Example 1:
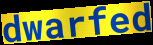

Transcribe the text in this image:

dwarfed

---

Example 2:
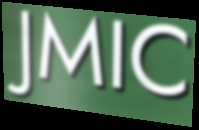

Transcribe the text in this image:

JMIC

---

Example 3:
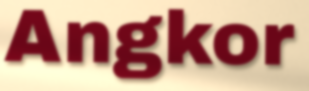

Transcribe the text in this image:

Angkor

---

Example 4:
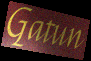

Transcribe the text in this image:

Gatun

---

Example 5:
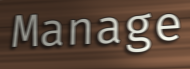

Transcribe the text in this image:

Manage